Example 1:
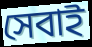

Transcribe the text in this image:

সেবাই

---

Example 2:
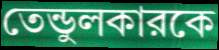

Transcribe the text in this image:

তেন্ডুলকারকে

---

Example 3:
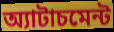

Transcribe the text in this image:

অ্যাটাচমেন্ট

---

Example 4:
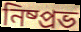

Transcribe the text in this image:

নিষ্প্রভ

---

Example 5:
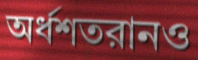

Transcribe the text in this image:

অর্ধশতরানও